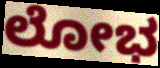
ಲೋಭ